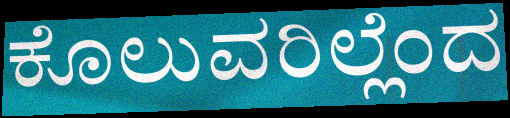
ಕೊಲುವರಿಲ್ಲೆಂದ